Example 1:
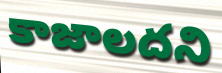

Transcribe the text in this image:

కాజాలదని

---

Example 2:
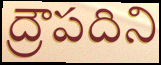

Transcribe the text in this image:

ద్రౌపదిని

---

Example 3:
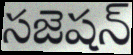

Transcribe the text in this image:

సజెషన్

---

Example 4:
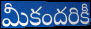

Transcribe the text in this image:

మీకందరికీ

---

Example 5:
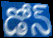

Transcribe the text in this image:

డోన్